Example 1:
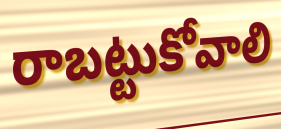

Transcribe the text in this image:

రాబట్టుకోవాలి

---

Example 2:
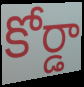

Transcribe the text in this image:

కోర్డా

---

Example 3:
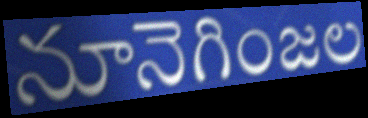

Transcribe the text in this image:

నూనెగింజల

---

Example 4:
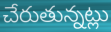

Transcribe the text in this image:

చేరుతున్నట్లు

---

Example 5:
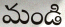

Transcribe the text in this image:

మండి